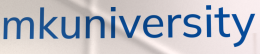
mkuniversity